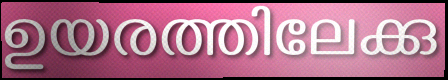
ഉയരത്തിലേക്കു